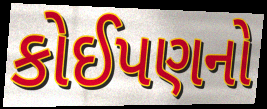
કોઈપણનો